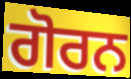
ਗੋਰਨ